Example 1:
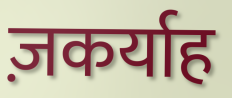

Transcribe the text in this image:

ज़कर्याह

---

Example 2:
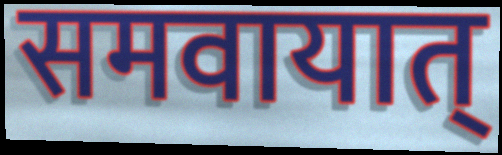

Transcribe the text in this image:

समवायात्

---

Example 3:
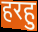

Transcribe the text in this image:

हरहु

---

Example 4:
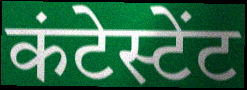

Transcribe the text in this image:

कंटेस्टेंट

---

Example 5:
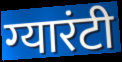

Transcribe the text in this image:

ग्‍यारंटी